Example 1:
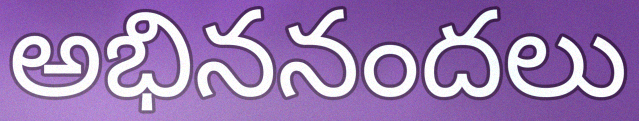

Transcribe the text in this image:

అభిననందలు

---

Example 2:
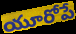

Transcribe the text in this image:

యూరోపే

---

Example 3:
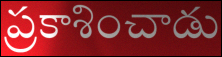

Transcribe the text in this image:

ప్రకాశించాడు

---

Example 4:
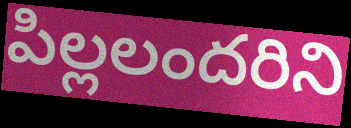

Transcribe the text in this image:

పిల్లలందరిని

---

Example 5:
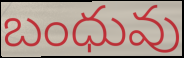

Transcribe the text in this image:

బంధువు